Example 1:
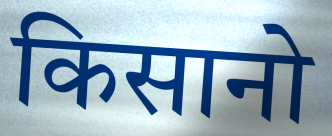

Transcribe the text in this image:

किसानो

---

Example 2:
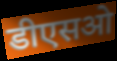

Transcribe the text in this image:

डीएसओ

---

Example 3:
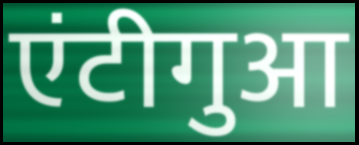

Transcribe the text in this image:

एंटीगुआ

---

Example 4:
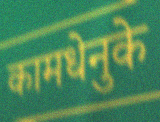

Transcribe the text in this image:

कामधेनुके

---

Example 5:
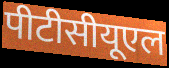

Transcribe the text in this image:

पीटीसीयूएल